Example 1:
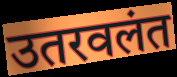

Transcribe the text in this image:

उतरवलंत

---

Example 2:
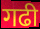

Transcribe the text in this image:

गढी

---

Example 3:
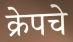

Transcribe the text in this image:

क्रेपचे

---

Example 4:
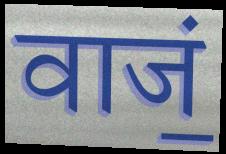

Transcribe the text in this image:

वाजं॒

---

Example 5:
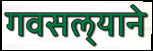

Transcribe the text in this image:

गवसल्याने